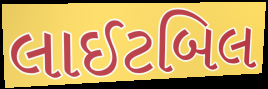
લાઈટબિલ